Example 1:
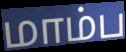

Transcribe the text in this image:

மாம்ப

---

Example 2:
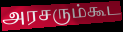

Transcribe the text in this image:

அரசரும்கூட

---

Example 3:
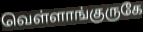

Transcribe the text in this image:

வெள்ளாங்குருகே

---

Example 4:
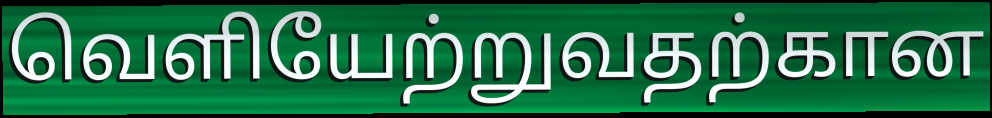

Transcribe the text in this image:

வெளியேற்றுவதற்கான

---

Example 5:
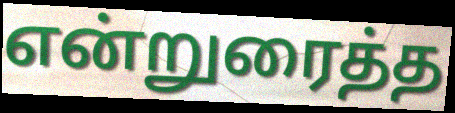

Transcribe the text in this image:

என்றுரைத்த